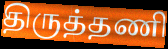
திருத்தணி